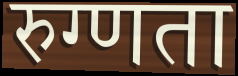
रुग्णता